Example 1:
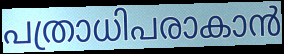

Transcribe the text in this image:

പത്രാധിപരാകാൻ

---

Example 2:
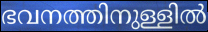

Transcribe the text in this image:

ഭവനത്തിനുള്ളിൽ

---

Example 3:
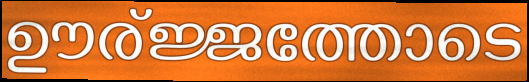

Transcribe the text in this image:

ഊര്ജ്ജത്തോടെ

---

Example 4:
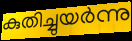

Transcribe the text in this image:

കുതിച്ചുയർന്നു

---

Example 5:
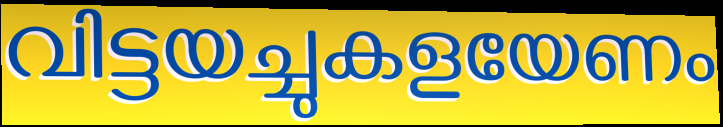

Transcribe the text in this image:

വിട്ടയച്ചുകളയേണം